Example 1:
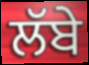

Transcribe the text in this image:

ਲੱਬੇ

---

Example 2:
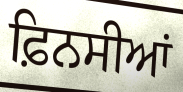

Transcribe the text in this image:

ਫ਼ਿਨਸੀਆਂ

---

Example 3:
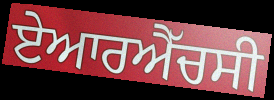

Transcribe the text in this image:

ਏਆਰਐੱਚਸੀ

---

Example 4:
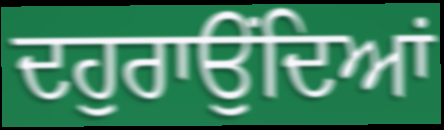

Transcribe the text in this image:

ਦਹੁਰਾਉਂਦਿਆਂ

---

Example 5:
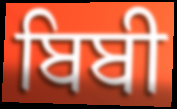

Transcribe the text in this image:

ਬਿਬੀ